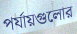
পর্যায়গুলোর